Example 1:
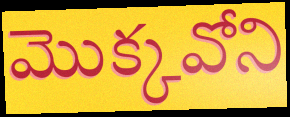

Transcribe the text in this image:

మొక్కవోని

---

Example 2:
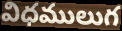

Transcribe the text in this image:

విధములుగ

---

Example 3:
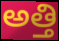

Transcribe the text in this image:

అత్తి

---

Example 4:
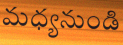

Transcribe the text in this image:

మధ్యనుండి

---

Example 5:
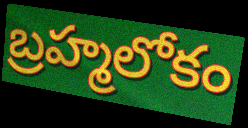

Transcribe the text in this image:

బ్రహ్మలోకం